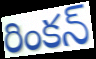
రింకన్